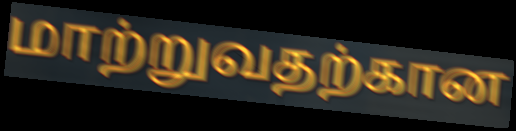
மாற்றுவதற்கான